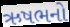
ઋષભનો